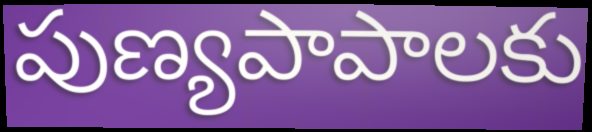
పుణ్యపాపాలకు